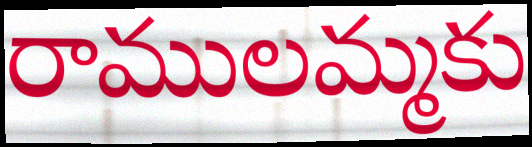
రాములమ్మకు